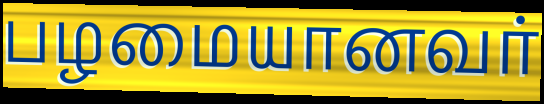
பழமையானவர்